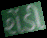
શેંડી